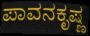
ಪಾವನಕೃಷ್ಣ